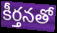
కీర్తనతో